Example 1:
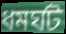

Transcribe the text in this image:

ধমর্ঘট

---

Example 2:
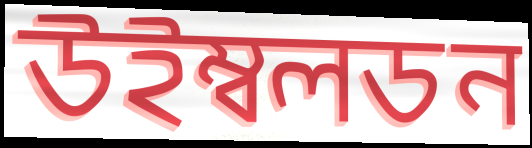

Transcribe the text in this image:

উইম্বলডন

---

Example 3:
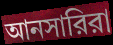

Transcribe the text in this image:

আনসারিরা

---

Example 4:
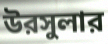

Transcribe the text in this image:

উরসুলার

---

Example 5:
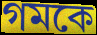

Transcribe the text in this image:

গমকে